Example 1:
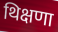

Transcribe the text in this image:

थिक्षणा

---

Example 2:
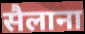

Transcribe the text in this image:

सैलाना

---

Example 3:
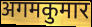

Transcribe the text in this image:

अगमकुमार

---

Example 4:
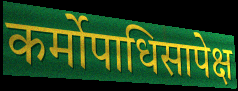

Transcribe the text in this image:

कर्मोपाधिसापेक्ष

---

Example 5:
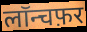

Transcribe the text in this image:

लॉन्चफ़र